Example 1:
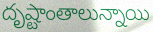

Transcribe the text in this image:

దృష్టాంతాలున్నాయి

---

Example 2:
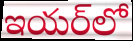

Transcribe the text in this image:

ఇయర్‌లో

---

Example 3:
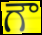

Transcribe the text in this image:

గౌ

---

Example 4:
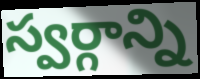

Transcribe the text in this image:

స్వర్గాన్ని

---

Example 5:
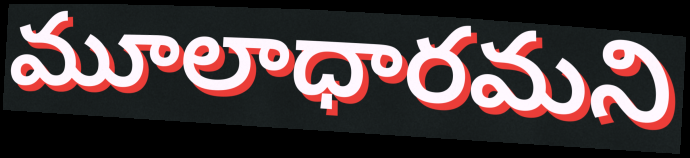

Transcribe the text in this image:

మూలాధారమని